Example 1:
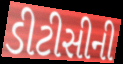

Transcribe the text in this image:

ડીટીસીની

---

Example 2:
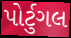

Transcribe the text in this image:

પોર્ટુગલ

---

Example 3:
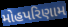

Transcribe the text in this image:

મોહપરિણામ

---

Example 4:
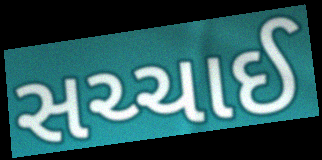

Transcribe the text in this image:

સચ્ચાઈ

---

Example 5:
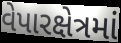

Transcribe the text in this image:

વેપારક્ષેત્રમાં